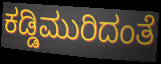
ಕಡ್ಡಿಮುರಿದಂತೆ